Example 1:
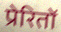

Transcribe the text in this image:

प्रेरितों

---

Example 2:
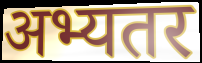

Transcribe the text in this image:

अभ्यतर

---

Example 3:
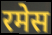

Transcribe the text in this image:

रमेस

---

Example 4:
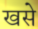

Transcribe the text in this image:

खसे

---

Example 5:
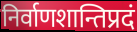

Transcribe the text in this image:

निर्वाणशान्तिप्रदं